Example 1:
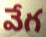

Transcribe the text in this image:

వేగ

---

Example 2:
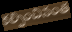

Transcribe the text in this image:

కల్పించినంత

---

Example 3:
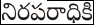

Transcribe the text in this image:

నిరపరాధికి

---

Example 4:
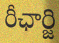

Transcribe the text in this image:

రీఛార్జి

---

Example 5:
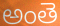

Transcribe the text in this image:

అంతె